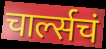
चार्ल्सचं